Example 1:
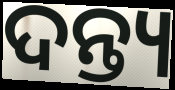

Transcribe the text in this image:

ଦନ୍ତ୍ୟ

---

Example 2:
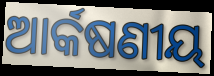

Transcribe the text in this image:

ଆର୍କଷଣୀୟ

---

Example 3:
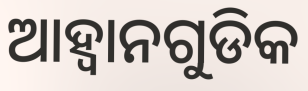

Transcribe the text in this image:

ଆହ୍ୱାନଗୁଡିକ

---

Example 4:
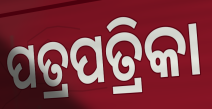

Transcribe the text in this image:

ପତ୍ରପତ୍ରିକା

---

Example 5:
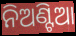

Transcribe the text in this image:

ନିଅଣ୍ଟିଆ